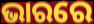
ଭାରରେ